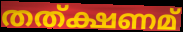
തത്ക്ഷണമ്